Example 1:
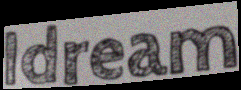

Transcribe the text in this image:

Idream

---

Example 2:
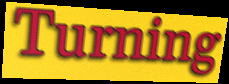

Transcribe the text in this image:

Turning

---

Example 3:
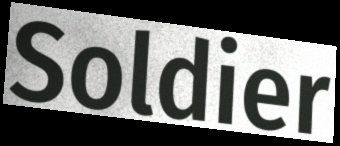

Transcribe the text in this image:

Soldier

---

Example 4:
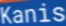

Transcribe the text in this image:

Kanis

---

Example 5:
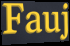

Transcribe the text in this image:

Fauj